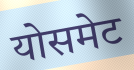
योसमेट